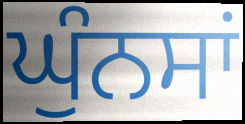
ਘੁੰਨਸਾਂ